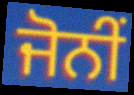
ਜੋਨੀਂ